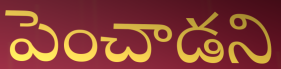
పెంచాడని